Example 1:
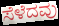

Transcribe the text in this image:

ಸೆಳೆದವು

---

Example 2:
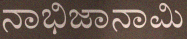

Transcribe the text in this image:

ನಾಭಿಜಾನಾಮಿ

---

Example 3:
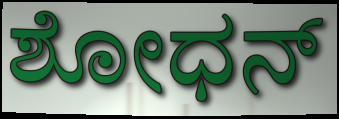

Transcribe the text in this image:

ಶೋಧನ್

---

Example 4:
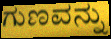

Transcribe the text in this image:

ಗುಣವನ್ನು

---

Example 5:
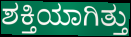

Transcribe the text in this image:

ಶಕ್ತಿಯಾಗಿತ್ತು